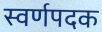
स्वर्णपदक